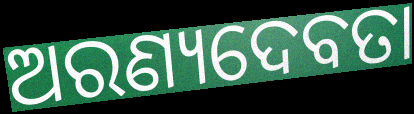
ଅରଣ୍ୟଦେବତା